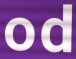
od